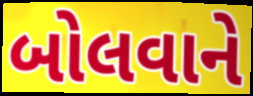
બોલવાને